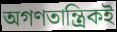
অগণতান্ত্রিকই